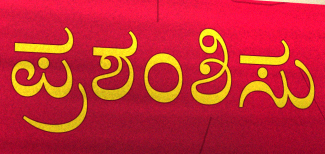
ಪ್ರಶಂಶಿಸು